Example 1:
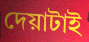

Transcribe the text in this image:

দেয়াটাই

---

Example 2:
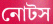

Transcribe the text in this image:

নোটস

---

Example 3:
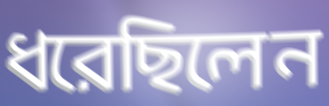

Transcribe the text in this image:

ধরেছিলেন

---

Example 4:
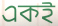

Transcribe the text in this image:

একই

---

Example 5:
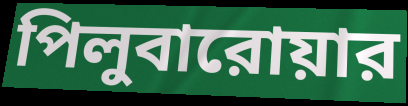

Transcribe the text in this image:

পিলুবারোয়ার